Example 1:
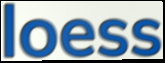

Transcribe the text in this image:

loess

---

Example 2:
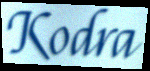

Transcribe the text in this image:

Kodra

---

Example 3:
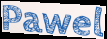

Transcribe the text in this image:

Pawel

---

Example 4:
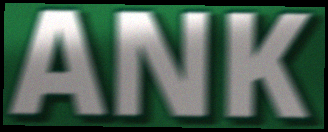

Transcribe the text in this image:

ANK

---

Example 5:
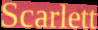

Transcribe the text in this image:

Scarlett